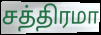
சத்திரமா